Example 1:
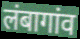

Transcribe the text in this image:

लंबागांव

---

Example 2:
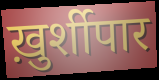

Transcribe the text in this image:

ख़ुर्शीपार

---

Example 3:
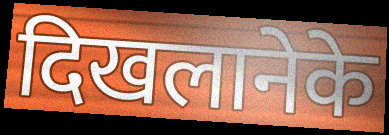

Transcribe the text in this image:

दिखलानेके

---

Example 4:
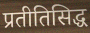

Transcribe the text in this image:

प्रतीतिसिद्ध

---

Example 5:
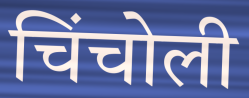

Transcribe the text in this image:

चिंचोली